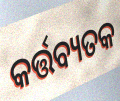
କର୍ତ୍ତବ୍ୟତକ